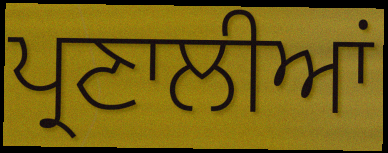
ਪ੍ਰਣਾਲੀਆਂ